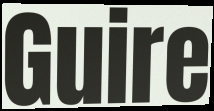
Guire